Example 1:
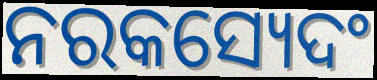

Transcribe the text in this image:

ନରକସ୍ୟେଦଂ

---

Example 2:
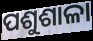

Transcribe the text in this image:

ପଶୁଶାଳା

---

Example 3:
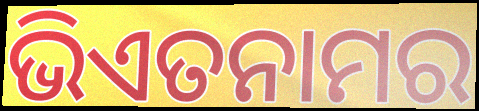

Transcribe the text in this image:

ଭିଏତନାମର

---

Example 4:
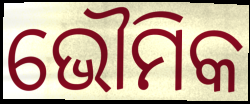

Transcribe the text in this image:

ଭୌମିକ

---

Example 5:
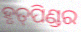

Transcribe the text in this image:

ହୃତ୍‌ପିଣ୍ଡର